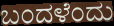
ಬಂದಳೆಂದು